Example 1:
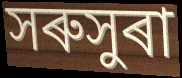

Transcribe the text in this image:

সৰুসুৰা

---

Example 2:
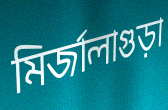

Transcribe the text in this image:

মিৰ্জালাগুড়া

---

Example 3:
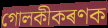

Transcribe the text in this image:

গোলকীকৰণক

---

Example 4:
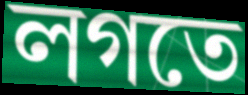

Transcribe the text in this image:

লগতে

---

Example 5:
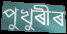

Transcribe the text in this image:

পুখুৰীৰ